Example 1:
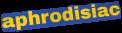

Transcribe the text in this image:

aphrodisiac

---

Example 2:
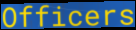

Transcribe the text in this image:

Officers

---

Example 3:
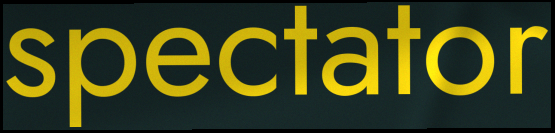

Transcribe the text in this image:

spectator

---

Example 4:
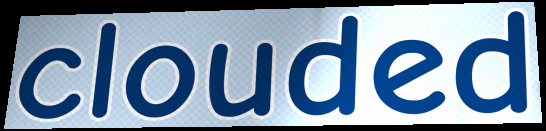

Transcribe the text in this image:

clouded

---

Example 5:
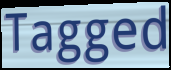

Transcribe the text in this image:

Tagged